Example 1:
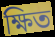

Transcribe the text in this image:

ক্ষিত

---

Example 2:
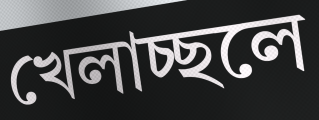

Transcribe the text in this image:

খেলাচ্ছলে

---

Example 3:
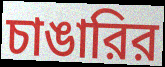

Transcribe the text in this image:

চাঙারির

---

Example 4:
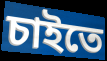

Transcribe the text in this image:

চাইতে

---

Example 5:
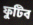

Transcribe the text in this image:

ফুটিব